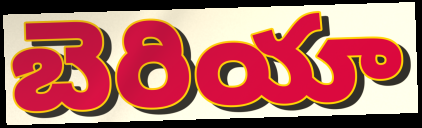
బెరియా